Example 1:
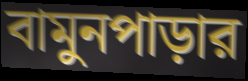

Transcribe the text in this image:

বামুনপাড়ার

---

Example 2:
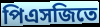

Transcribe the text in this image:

পিএসজিতে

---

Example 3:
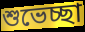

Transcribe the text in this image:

শুভেচ্ছা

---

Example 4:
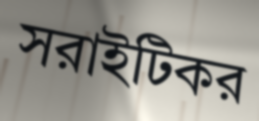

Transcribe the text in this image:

সরাইটিকর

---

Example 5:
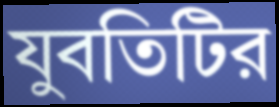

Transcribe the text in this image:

যুবতিটির